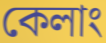
কেলাং